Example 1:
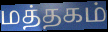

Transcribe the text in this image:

மத்தகம்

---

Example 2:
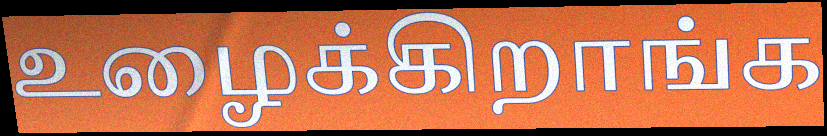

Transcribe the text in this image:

உழைக்கிறாங்க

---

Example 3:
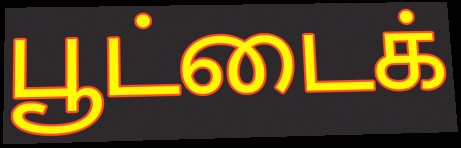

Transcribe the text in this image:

பூட்டைக்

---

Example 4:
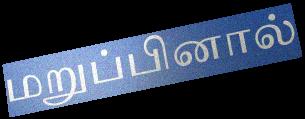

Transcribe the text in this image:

மறுப்பினால்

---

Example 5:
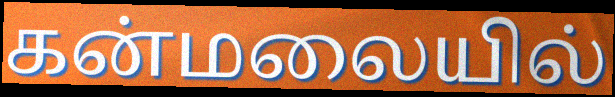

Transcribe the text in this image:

கன்மலையில்